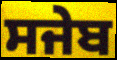
ਸਜੇਬ